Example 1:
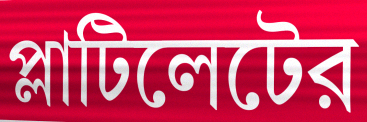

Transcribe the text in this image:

প্লাটিলেটের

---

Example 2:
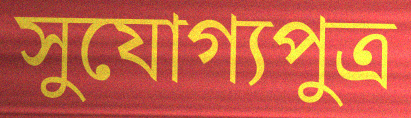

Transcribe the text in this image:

সুযোগ্যপুত্র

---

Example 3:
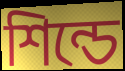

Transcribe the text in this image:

শিন্ডে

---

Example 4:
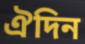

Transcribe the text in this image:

ঐদিন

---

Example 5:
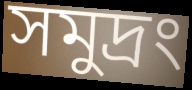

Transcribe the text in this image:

সমুদ্রং